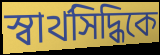
স্বার্থসিদ্ধিকে